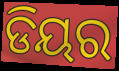
ଡିୟର